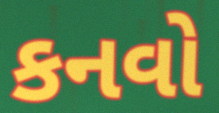
કનવો